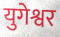
युगेश्वर